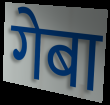
गेबा